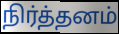
நிர்த்தனம்